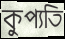
কুপ্যতি